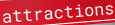
attractions